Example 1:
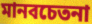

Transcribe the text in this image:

মানবচেতনা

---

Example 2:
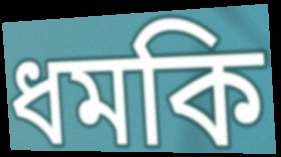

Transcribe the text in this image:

ধমকি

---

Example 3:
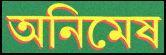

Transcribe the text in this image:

অনিমেষ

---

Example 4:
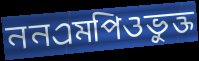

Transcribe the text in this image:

ননএমপিওভুক্ত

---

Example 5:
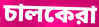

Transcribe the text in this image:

চালকেরা